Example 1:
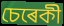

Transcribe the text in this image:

চেৰেকী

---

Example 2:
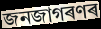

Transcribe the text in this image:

জনজাগৰণৰ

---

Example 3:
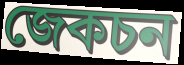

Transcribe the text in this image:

জেকচন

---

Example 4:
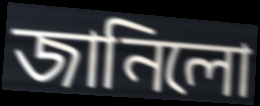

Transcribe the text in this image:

জানিলো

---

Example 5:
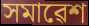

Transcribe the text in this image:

সমাৱেশ